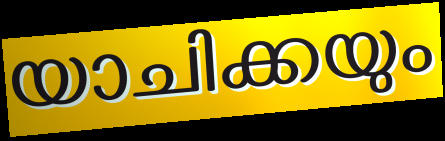
യാചിക്കയും